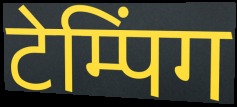
टेम्पिंग